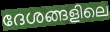
ദേശങ്ങളിലെ